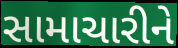
સામાચારીને